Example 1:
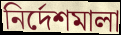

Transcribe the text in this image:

নির্দেশমালা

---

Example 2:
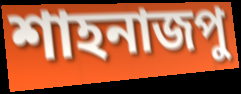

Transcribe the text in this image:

শাহনাজপু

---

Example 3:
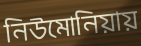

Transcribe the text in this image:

নিউমোনিয়ায়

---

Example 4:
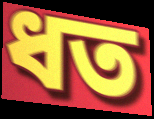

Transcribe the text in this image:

ধত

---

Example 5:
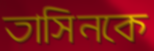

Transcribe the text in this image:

তাসিনকে